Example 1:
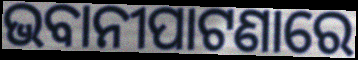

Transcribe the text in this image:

ଭବାନୀପାଟଣାରେ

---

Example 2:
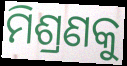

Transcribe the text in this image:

ମିଶ୍ରଣକୁ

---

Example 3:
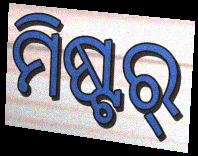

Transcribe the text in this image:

ମିଷ୍ଟର୍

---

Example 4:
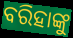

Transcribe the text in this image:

ବରିହାଙ୍କୁ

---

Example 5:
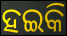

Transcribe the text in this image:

ହଇକି